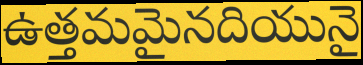
ఉత్తమమైనదియునై